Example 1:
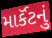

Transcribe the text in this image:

માર્કૅટનું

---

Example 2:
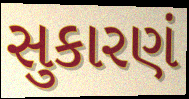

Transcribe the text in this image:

સુકારણં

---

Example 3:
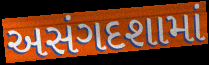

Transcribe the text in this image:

અસંગદશામાં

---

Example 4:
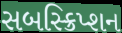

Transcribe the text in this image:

સબસ્ક્રિપ્શન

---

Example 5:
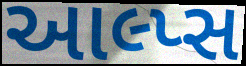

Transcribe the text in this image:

આલ્પ્સ